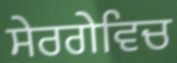
ਸੇਰਗੇਵਿਚ